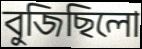
বুজিছিলো